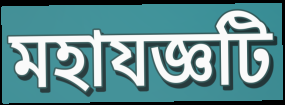
মহাযজ্ঞটি